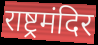
राष्ट्रमंदिर